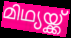
മിഥ്യയ്ക്ക്